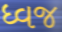
ધ્વજ